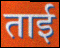
ताई